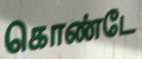
கொண்டே